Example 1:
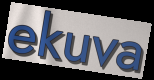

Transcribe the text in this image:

ekuva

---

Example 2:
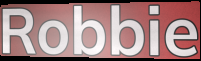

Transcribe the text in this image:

Robbie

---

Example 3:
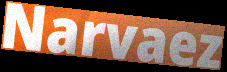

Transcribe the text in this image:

Narvaez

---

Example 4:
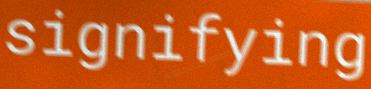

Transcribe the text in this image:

signifying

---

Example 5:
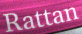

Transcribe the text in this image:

Rattan